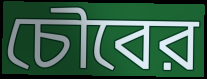
চৌবের